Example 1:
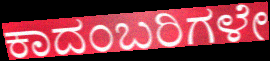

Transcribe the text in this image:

ಕಾದಂಬರಿಗಳೇ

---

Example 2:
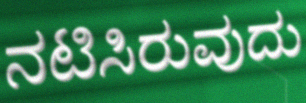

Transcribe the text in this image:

ನಟಿಸಿರುವುದು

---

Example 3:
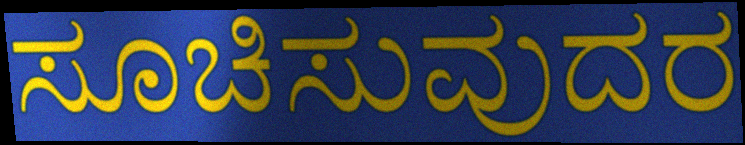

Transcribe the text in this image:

ಸೂಚಿಸುವುದರ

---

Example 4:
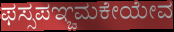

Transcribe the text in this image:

ಫಸ್ಸಪಞ್ಚಮಕೇಯೇವ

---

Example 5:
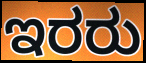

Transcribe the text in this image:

ಇರರು